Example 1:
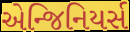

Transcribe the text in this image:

એન્જિનિયર્સ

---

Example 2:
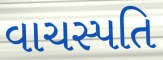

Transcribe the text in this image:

વાચસ્પતિ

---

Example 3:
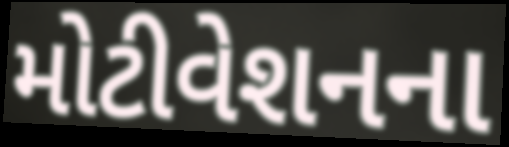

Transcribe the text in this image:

મોટીવેશનના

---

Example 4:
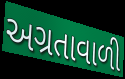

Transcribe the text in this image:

અગ્રતાવાળી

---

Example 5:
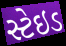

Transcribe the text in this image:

સ્ટેઇડ